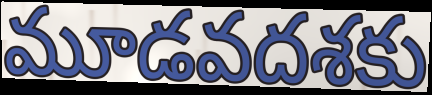
మూడవదశకు